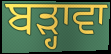
ਬੜ੍ਹਾਵਾ